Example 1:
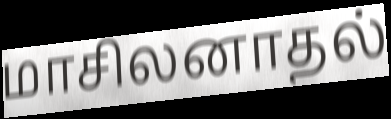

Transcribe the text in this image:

மாசிலனாதல்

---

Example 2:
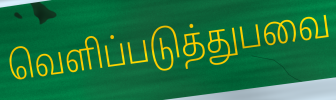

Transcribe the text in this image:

வெளிப்படுத்துபவை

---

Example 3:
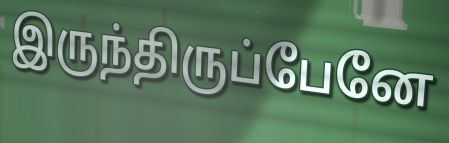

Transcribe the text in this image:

இருந்திருப்பேனே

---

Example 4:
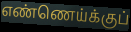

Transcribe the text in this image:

எண்ணெய்க்குப்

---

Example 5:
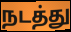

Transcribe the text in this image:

நடத்து